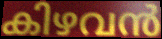
കിഴവൻ